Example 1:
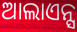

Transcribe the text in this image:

ଆଲାଏନ୍ସ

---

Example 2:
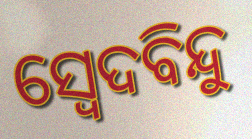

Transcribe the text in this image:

ସ୍ୱେଦବିନ୍ଦୁ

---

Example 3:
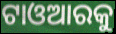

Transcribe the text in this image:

ଟାଓଆରକୁ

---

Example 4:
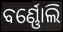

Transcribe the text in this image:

ବର୍ଣ୍ଣୋଲି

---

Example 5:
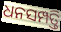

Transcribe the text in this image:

ଧନସମ୍ପତ୍ତି